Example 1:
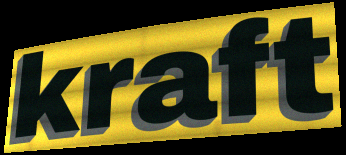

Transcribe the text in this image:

kraft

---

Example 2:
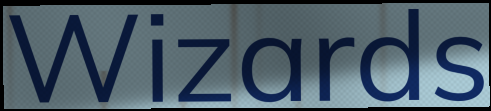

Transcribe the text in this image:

Wizards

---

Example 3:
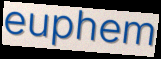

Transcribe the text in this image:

euphem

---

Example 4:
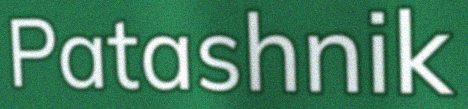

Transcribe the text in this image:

Patashnik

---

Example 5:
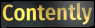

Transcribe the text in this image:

Contently